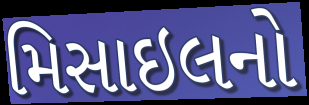
મિસાઇલનો